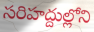
సరిహద్దుల్లోని